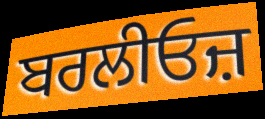
ਬਰਲੀਓਜ਼